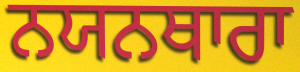
ਨਯਨਥਾਰਾ